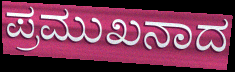
ಪ್ರಮುಖನಾದ